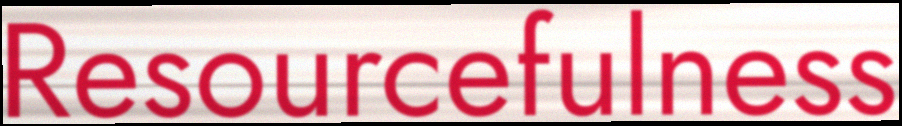
Resourcefulness